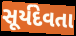
સૂર્યદેવતા